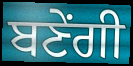
ਬਣੇਂਗੀ